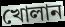
খোলান